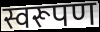
स्वरूपण